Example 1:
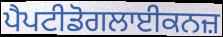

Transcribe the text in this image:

ਪੈਪਟੀਡੋਗਲਾਈਕਨਜ਼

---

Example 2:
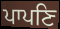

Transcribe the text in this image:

ਪਾਪਣਿ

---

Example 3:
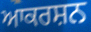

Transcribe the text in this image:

ਆਕਰਸ਼ਨ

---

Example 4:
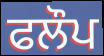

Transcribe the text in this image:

ਫਲੌਪ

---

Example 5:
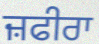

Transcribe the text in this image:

ਜ਼ਫੀਰਾ